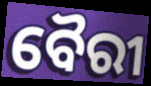
ବୈରୀ